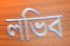
লভিব